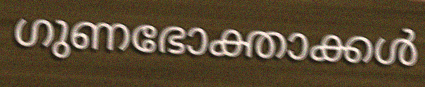
ഗുണഭോക്താക്കൾ